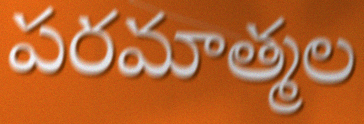
పరమాత్మల